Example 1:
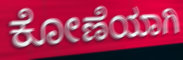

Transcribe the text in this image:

ಕೋಣೆಯಾಗಿ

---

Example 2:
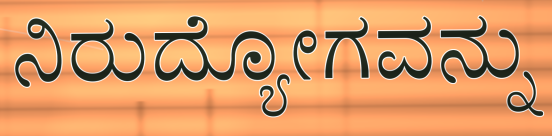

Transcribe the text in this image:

ನಿರುದ್ಯೋಗವನ್ನು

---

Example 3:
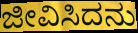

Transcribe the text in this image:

ಜೀವಿಸಿದನು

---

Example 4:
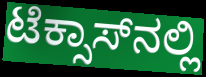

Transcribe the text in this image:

ಟೆಕ್ಸಾಸ್‌ನಲ್ಲಿ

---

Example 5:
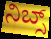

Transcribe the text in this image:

ನಿಬ್ಸ್